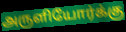
அருளியோர்க்கு